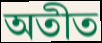
অতীত